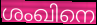
ശംഖിനെ